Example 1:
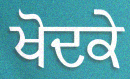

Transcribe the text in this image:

ਖੋਦਕੇ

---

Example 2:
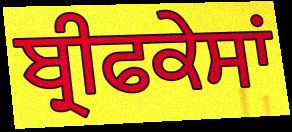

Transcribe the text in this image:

ਬ੍ਰੀਫਕੇਸਾਂ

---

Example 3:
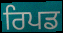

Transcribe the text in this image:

ਰਿਪਡ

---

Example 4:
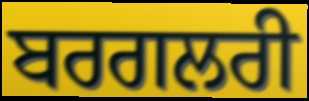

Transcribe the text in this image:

ਬਰਗਲਰੀ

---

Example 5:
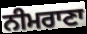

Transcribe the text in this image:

ਨੀਮਰਾਣਾ